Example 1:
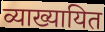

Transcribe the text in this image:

व्याख्यायित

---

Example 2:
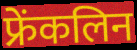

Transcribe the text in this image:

फ्रेंकलिन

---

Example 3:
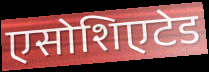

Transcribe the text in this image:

एसोशिएटेड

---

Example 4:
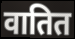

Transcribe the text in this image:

वातित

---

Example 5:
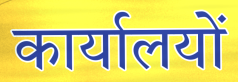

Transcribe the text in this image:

कार्यालयों